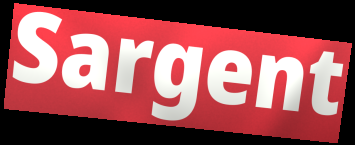
Sargent